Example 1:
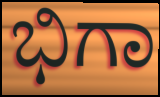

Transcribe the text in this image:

ಭಿಗಾ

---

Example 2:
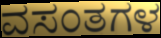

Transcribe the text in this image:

ವಸಂತಗಳ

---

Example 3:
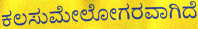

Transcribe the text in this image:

ಕಲಸುಮೇಲೋಗರವಾಗಿದೆ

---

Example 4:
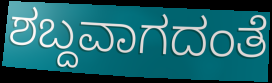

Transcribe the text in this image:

ಶಬ್ದವಾಗದಂತೆ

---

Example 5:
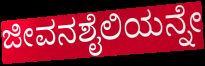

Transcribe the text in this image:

ಜೀವನಶೈಲಿಯನ್ನೇ